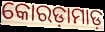
କୋରଡ଼ାମାଡ଼